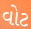
વોટ